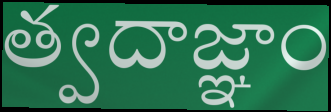
త్వదాజ్ఞాం